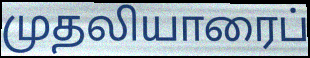
முதலியாரைப்